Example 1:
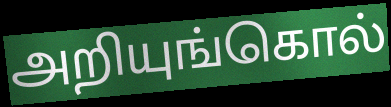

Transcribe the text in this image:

அறியுங்கொல்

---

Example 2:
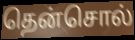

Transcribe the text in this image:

தென்சொல்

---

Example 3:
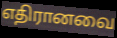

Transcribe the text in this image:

எதிரானவை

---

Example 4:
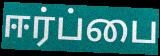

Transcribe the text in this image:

ஈர்ப்பை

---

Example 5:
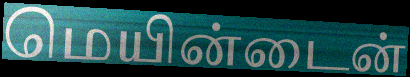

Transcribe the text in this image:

மெயின்டைன்